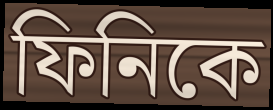
ফিনিকে